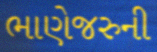
ભાણેજરુની